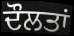
ਦੌਲਤਾਂ